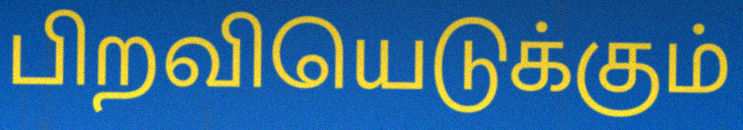
பிறவியெடுக்கும்